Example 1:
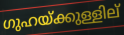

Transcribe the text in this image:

ഗുഹയ്ക്കുള്ളില്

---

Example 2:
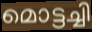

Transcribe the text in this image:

മൊട്ടച്ചി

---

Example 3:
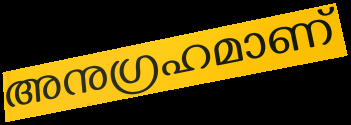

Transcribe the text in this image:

അനുഗ്രഹമാണ്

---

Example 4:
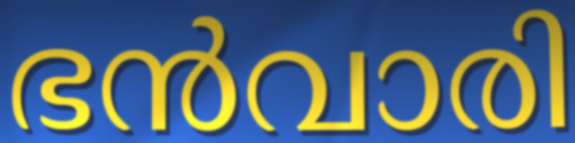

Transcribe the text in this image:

ഭൻവാരി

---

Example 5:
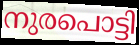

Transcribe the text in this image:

നുരപൊട്ടി